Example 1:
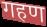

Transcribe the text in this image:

गहण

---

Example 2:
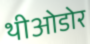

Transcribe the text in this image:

थीओडोर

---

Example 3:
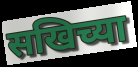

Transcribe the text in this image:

सखिच्या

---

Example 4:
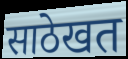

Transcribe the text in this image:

साठेखत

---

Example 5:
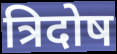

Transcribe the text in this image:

त्रिदोष